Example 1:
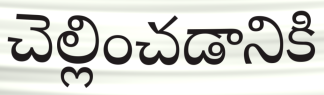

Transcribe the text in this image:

చెల్లించడానికి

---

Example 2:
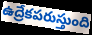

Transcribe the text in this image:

ఉద్రేకపరుస్తుంది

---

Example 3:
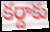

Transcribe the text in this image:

కర్దాకు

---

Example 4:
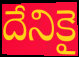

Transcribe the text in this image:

దేనికై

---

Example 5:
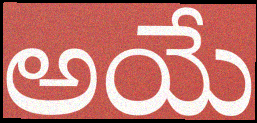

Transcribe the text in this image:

అయే